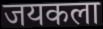
जयकला